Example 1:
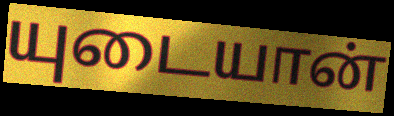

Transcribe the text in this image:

யுடையான்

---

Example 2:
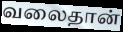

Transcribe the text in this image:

வலைதான்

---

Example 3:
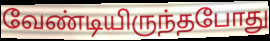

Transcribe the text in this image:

வேண்டியிருந்தபோது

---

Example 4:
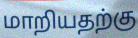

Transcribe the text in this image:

மாறியதற்கு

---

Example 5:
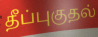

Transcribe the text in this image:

தீப்புகுதல்